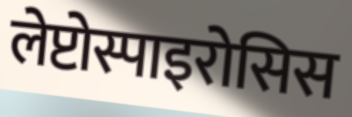
लेप्टोस्पाइरोसिस